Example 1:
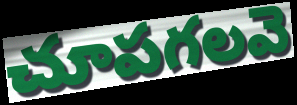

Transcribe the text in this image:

చూపగలవె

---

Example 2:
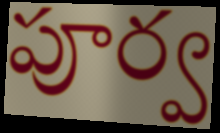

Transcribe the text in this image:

పూర్వ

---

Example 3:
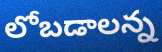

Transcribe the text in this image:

లోబడాలన్న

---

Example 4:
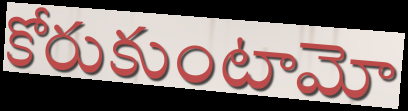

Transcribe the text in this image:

కోరుకుంటామో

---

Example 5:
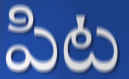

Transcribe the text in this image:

పిట